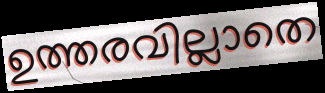
ഉത്തരവില്ലാതെ